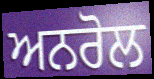
ਅਨਰੋਲ